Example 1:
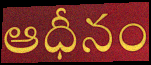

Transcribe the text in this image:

ఆధీనం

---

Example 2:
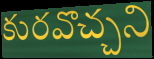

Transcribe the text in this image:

కురవొచ్చని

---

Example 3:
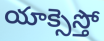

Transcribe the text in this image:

యాక్సెస్తో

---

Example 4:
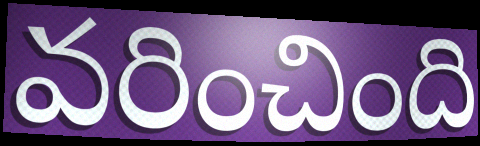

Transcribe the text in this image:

వరించింది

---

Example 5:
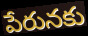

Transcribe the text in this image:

పేరునకు